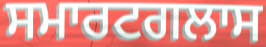
ਸਮਾਰਟਗਲਾਸ